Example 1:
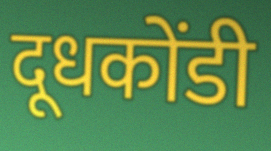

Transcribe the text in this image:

दूधकोंडी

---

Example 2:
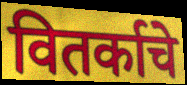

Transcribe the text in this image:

वितर्काचे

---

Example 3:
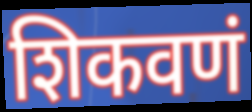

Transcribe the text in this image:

शिकवणं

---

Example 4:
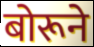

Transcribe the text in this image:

बोरूने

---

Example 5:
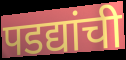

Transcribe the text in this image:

पडद्यांची